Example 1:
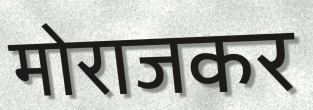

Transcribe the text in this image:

मोराजकर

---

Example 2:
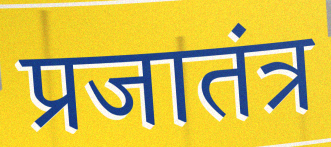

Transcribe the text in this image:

प्रजातंत्र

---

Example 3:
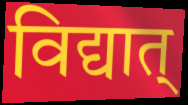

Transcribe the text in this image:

विद्यात्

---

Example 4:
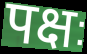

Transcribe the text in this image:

पक्षः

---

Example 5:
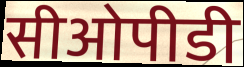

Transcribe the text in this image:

सीओपीडी